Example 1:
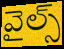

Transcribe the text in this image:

వైల్స్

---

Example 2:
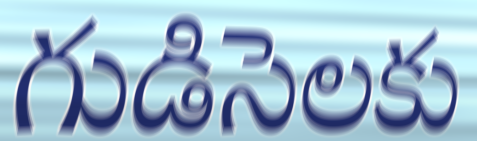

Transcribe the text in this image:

గుడిసెలకు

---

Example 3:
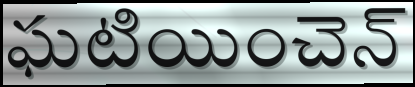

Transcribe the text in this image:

ఘటియించెన్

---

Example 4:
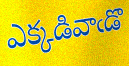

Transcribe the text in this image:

ఎక్కడివాఁడొ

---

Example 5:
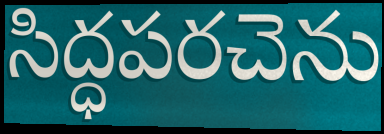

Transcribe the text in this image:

సిద్ధపరచెను